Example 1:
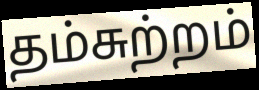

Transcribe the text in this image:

தம்சுற்றம்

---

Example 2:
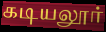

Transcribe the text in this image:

கடியலூர்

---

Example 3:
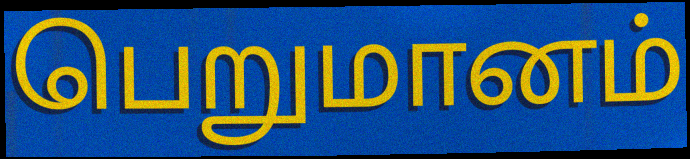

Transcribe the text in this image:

பெறுமானம்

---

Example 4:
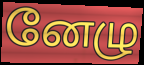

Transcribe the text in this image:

னேழு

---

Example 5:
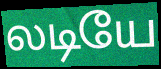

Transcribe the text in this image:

லடியே